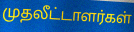
முதலீட்டாளர்கள்